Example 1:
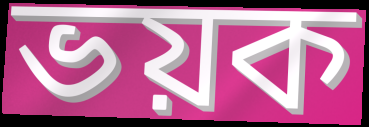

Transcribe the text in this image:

ভয়ক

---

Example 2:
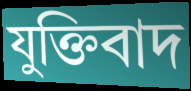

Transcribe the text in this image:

যুক্তিবাদ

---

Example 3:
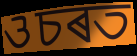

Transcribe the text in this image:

ওচৰত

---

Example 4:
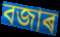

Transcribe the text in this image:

বজাৰ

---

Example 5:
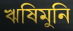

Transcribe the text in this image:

ঋষিমুনি